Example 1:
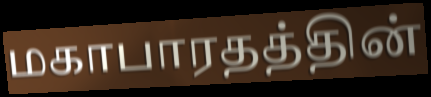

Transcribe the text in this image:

மகாபாரதத்தின்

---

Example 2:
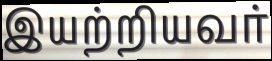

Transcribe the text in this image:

இயற்றியவர்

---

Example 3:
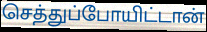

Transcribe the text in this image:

செத்துப்போயிட்டான்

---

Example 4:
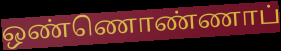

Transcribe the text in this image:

ஒண்ணொண்ணாப்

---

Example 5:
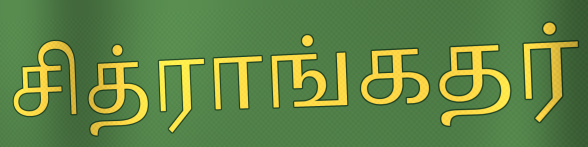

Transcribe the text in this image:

சித்ராங்கதர்